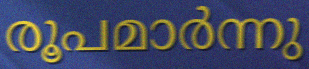
രൂപമാർന്നു